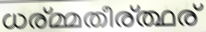
ധര്മ്മതീര്ത്ഥര്